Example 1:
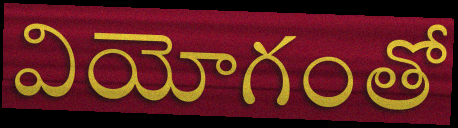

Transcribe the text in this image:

వియోగంతో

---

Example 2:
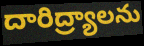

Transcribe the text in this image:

దారిద్ర్యాలను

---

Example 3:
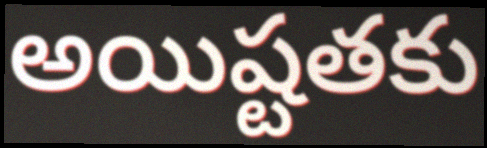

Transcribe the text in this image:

అయిష్టతకు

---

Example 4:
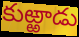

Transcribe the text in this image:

కుఱ్ఱాడు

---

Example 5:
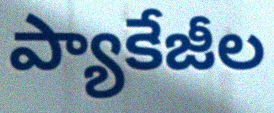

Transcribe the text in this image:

ప్యాకేజీల